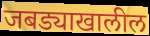
जबड्याखालील